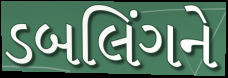
ડબલિંગને